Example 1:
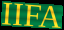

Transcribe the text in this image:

IIFA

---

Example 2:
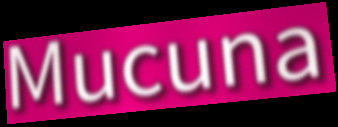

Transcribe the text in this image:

Mucuna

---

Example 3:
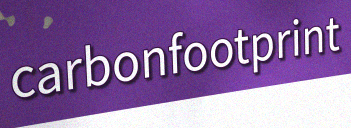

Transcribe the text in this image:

carbonfootprint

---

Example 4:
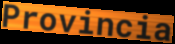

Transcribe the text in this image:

Provincia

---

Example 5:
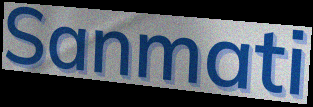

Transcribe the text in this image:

Sanmati